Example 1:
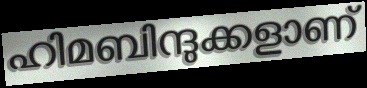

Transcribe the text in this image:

ഹിമബിന്ദുക്കളാണ്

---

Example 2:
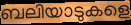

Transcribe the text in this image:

ബലിയാടുകളെ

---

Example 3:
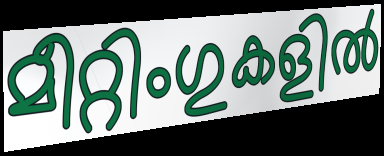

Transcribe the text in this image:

മീറ്റിംഗുകളിൽ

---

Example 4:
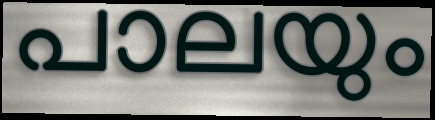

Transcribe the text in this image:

പാലയും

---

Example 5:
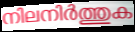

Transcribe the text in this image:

നിലനിർത്തുക